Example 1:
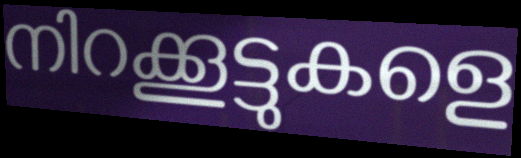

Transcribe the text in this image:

നിറക്കൂട്ടുകളെ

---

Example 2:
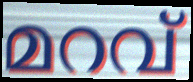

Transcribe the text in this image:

മറവ്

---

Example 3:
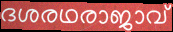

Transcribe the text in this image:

ദശരഥരാജാവ്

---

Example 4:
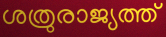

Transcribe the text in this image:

ശത്രുരാജ്യത്ത്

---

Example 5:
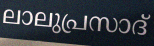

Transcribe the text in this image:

ലാലുപ്രസാദ്